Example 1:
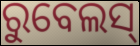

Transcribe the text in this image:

ରୁବେଲସ୍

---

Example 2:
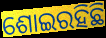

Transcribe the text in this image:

ଶୋଇରହିଛି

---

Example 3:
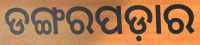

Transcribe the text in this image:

ଡଙ୍ଗରପଡ଼ାର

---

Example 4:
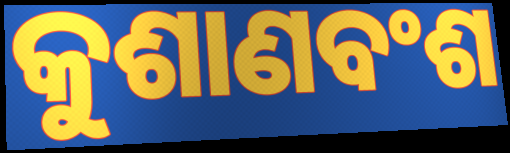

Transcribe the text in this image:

କୁଶାଣବଂଶ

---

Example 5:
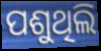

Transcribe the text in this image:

ପଶୁଥିଲି